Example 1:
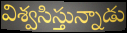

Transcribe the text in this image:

విశ్వసిస్తున్నాడు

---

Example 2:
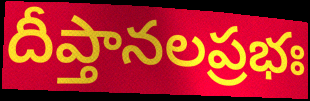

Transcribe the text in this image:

దీప్తానలప్రభః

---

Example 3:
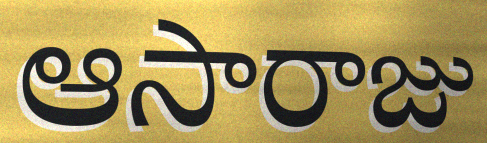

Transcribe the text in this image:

ఆసారాజు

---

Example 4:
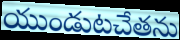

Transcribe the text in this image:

యుండుటచేతను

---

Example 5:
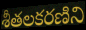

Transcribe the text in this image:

శీతలకరణిని